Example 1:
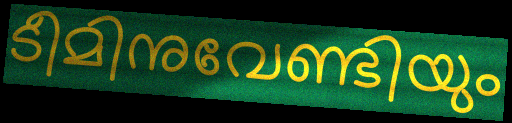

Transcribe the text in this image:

ടീമിനുവേണ്ടിയും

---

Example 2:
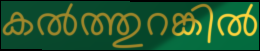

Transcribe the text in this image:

കൽത്തുറങ്കിൽ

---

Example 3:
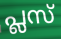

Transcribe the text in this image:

പ്ലസ്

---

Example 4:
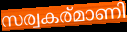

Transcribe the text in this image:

സര്വകര്മാണി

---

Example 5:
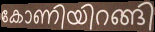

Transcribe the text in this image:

കോണിയിറങ്ങി